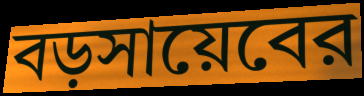
বড়সায়েবের